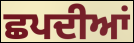
ਛਪਦੀਆਂ